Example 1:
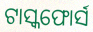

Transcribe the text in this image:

ଟାସ୍କଫୋର୍ସ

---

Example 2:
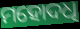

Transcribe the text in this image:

ମହୋଦଧି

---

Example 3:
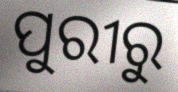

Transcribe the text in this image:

ପୁରୀରୁ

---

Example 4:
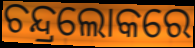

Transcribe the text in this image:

ଚନ୍ଦ୍ରଲୋକରେ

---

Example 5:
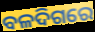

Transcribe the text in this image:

ବଳଦିଗରେ